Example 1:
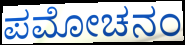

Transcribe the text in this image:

ಪಮೋಚನಂ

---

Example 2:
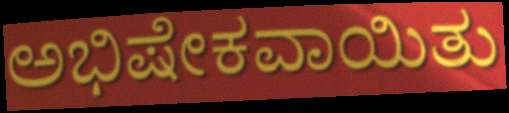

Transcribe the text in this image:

ಅಭಿಷೇಕವಾಯಿತು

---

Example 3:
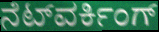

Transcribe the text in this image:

ನೆಟ್‌ವರ್ಕಿಂಗ್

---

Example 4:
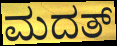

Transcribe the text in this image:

ಮದತ್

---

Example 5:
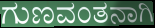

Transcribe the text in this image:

ಗುಣವಂತನಾಗಿ